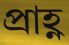
প্ৰাহ্ণ